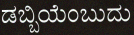
ಡಬ್ಬಿಯೆಂಬುದು